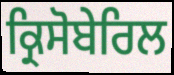
ਕ੍ਰਿਸੋਬੇਰਿਲ